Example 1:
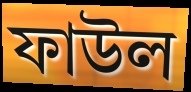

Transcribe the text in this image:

ফাউল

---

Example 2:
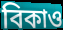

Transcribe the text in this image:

বিকাও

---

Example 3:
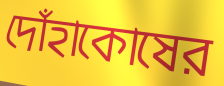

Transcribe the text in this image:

দোঁহাকোষের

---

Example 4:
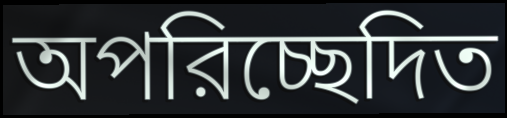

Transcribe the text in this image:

অপরিচ্ছেদিত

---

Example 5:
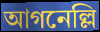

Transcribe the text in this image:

আগনেল্লি